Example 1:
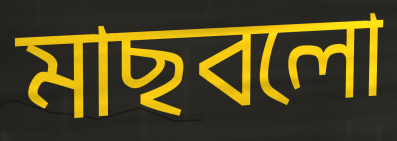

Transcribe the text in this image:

মাছবলো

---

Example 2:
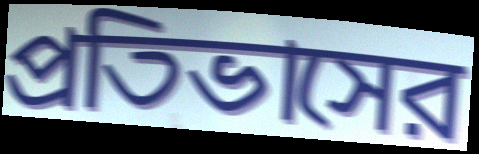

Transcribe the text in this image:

প্রতিভাসের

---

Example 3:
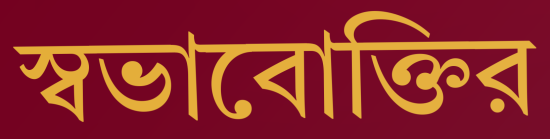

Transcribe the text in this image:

স্বভাবোক্তির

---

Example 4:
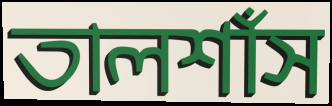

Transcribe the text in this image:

তালশাঁস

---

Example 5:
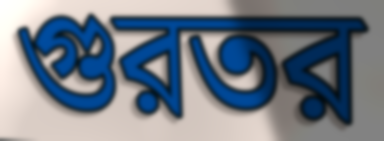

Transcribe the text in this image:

গুরতর